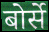
बोर्से